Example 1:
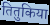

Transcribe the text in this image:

तितुकिया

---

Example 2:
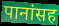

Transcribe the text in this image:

पानांसह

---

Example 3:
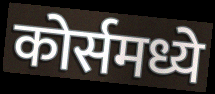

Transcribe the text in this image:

कोर्समध्ये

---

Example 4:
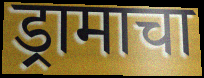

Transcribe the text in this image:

ड्रामाचा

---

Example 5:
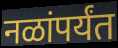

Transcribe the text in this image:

नळांपर्यंत